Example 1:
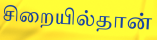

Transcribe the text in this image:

சிறையில்தான்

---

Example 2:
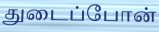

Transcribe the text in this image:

துடைப்போன்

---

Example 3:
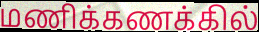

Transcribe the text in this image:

மணிக்கணக்கில்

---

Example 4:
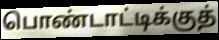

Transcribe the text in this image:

பொண்டாட்டிக்குத்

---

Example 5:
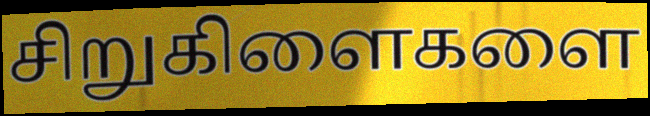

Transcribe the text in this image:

சிறுகிளைகளை